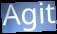
Agit